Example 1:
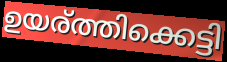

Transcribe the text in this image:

ഉയര്ത്തിക്കെട്ടി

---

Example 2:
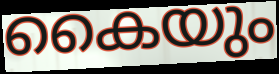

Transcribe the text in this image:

കൈയും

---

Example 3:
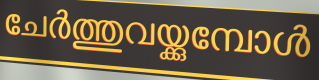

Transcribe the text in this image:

ചേർത്തുവയ്ക്കുമ്പോൾ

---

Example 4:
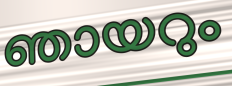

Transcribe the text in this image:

ഞായറും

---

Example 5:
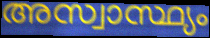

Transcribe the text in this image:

അസ്വാസ്ഥ്യം